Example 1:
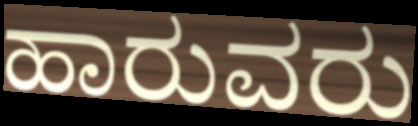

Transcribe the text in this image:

ಹಾರುವರು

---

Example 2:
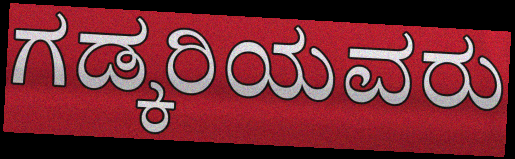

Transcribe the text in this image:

ಗಡ್ಕರಿಯವರು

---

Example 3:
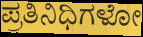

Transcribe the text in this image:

ಪ್ರತಿನಿಧಿಗಳೋ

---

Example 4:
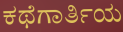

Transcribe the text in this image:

ಕಥೆಗಾರ್ತಿಯ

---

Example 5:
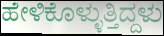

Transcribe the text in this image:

ಹೇಳಿಕೊಳ್ಳುತ್ತಿದ್ದಳು